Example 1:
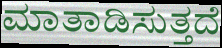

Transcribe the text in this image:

ಮಾತಾಡಿಸುತ್ತದೆ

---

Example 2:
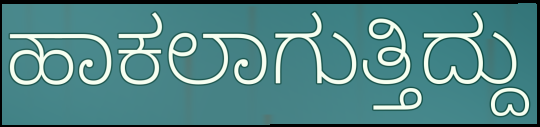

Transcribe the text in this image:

ಹಾಕಲಾಗುತ್ತಿದ್ದು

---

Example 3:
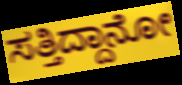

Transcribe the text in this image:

ಸತ್ತಿದ್ದಾನೋ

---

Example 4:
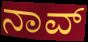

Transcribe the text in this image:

ನಾವ್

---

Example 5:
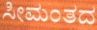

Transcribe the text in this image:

ಸೀಮಂತದ